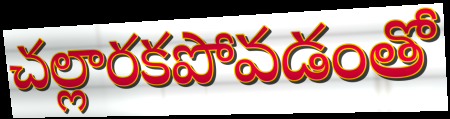
చల్లారకపోవడంతో